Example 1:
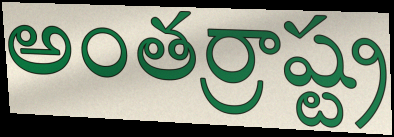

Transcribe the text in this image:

అంతర్రాష్ట్ర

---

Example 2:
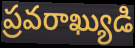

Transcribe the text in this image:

ప్రవరాఖ్యుడి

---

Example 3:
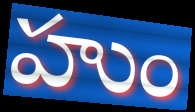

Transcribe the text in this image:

హుం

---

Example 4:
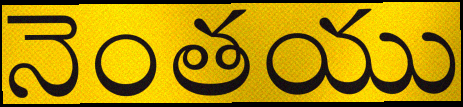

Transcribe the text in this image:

నెంతయు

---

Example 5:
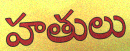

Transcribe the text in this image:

హతులు